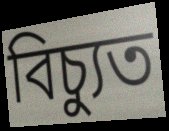
বিচ্যুত